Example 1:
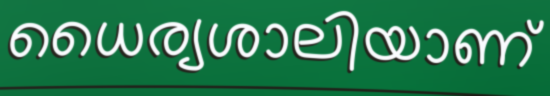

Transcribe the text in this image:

ധൈര്യശാലിയാണ്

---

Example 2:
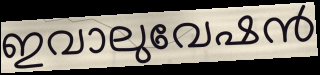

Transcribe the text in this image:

ഇവാലുവേഷൻ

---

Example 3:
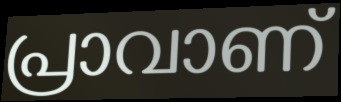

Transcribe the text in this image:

പ്രാവാണ്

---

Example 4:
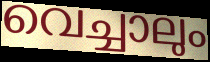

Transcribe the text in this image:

വെച്ചാലും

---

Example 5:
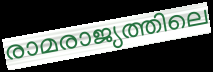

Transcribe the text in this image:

രാമരാജ്യത്തിലെ